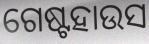
ଗେଷ୍ଟହାଉସ